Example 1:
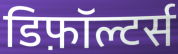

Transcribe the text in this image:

डिफ़ॉल्टर्स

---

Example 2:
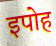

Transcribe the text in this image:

इपोह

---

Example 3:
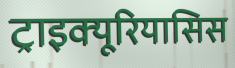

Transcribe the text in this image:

ट्राइक्यूरियासिस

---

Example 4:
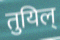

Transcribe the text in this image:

तुयिल्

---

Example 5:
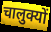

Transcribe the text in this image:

चालुक्यों